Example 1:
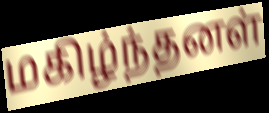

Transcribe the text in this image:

மகிழ்ந்தனள்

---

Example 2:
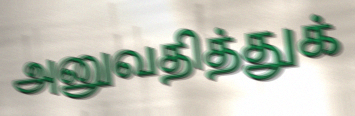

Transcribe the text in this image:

அனுவதித்துக்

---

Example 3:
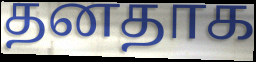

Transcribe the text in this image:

தனதாக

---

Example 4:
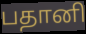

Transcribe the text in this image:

பதானி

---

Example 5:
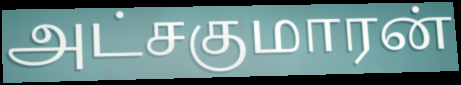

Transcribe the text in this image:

அட்சகுமாரன்